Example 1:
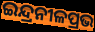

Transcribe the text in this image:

ଇନ୍ଦ୍ରନୀଳପ୍ରଭ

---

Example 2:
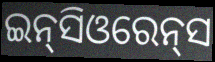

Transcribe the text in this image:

ଇନ୍‌ସିଓରେନ୍‌ସ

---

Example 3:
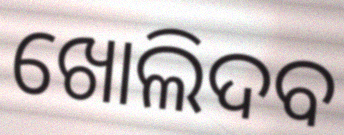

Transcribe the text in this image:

ଖୋଲିଦବ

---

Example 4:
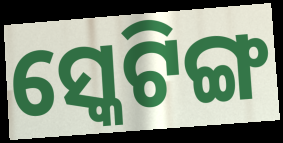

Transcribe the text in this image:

ସ୍କେଟିଙ୍ଗ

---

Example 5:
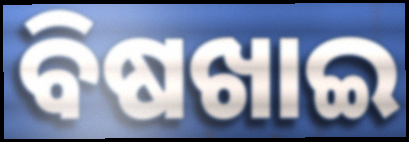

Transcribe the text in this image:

ବିଷଖାଇ